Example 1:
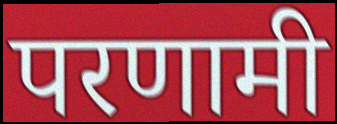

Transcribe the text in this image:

परणामी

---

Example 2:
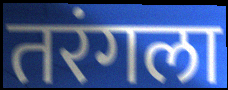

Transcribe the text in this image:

तरंगला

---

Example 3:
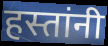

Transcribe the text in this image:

हस्तांनी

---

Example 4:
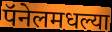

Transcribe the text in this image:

पॅनेलमधल्या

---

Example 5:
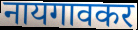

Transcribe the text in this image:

नायगावकर